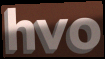
hvo